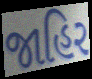
જાહિર